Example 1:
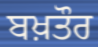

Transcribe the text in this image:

ਬਖ਼ਤੌਰ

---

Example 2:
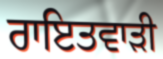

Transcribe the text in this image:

ਰਾਇਤਵਾੜੀ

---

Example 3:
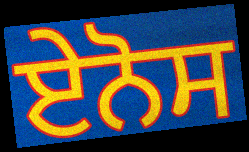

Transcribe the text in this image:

ਏਨੋਸ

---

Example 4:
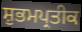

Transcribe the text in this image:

ਸ਼ੁਭਮਪ੍ਰਤੀਕ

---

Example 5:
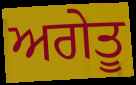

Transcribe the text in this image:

ਅਗੇਤੂ